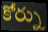
కోర్ను